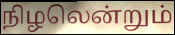
நிழலென்றும்